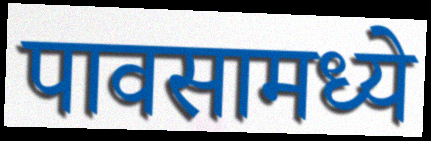
पावसामध्ये